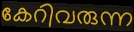
കേറിവരുന്ന